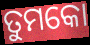
ତୁମକୋ